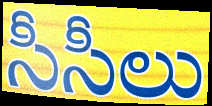
సీసీలు